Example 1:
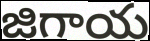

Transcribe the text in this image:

జిగాయ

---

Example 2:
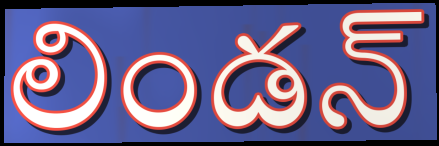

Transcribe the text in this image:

లిండన్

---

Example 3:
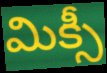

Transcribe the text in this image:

మిక్సీ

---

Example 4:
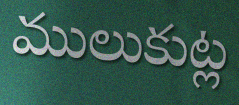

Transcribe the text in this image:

ములుకుట్ల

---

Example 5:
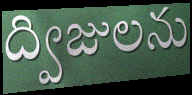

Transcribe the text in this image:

ద్విజులను